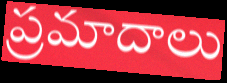
ప్రమాదాలు